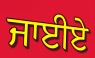
ਜਾਈਏ